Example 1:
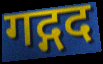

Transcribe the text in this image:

गद्गद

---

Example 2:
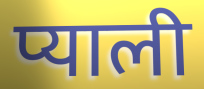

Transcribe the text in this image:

प्याली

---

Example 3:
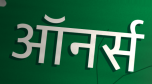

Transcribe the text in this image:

ऑनर्स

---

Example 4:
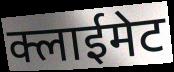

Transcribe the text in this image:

क्लाईमेट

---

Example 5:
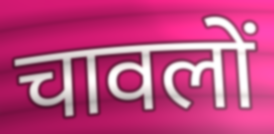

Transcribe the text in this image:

चावलों